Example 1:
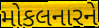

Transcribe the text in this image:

મોકલનારને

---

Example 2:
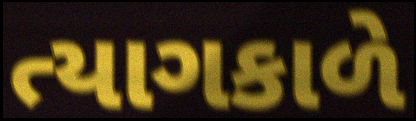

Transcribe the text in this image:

ત્યાગકાળે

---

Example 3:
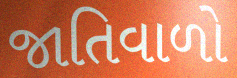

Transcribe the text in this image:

જાતિવાળો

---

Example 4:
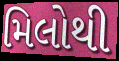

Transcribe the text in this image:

મિલોથી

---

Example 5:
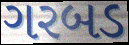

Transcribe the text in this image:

ગરબડ